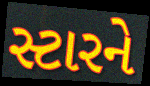
સ્ટારને